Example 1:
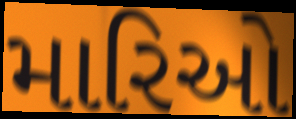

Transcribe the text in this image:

મારિઓ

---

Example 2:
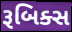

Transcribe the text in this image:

રૂબિક્સ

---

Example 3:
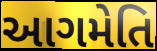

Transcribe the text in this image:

આગમેતિ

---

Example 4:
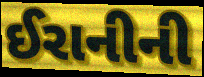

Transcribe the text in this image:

ઈરાનીની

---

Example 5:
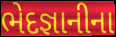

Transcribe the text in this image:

ભેદજ્ઞાનીના